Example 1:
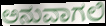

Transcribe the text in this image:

ಅನುವಾಗಲಿ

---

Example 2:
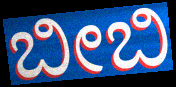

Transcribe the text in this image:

ಬೀಬಿ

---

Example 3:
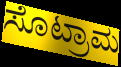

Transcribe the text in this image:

ಸೊಟ್ರಾಮ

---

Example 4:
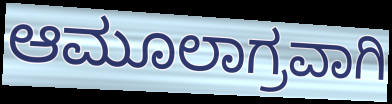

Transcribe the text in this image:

ಆಮೂಲಾಗ್ರವಾಗಿ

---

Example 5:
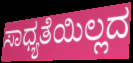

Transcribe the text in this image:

ಸಾಧ್ಯತೆಯಿಲ್ಲದ